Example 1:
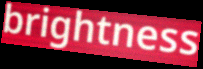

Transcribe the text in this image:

brightness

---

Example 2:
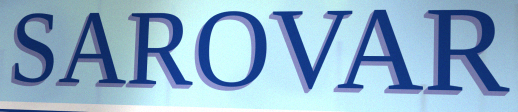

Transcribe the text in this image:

SAROVAR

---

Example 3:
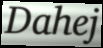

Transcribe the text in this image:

Dahej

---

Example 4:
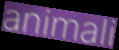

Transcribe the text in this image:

animali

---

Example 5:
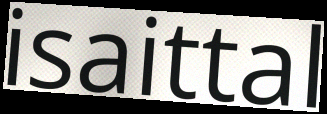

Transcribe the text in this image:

isaittal